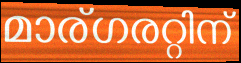
മാര്ഗരറ്റിന്